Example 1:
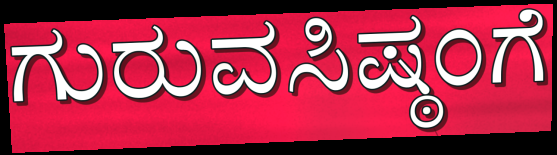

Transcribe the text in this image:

ಗುರುವಸಿಷ್ಠಂಗೆ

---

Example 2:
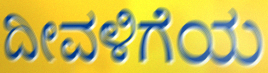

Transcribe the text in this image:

ದೀವಳಿಗೆಯ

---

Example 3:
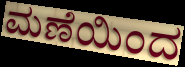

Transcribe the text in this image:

ಮಣೆಯಿಂದ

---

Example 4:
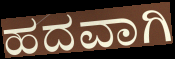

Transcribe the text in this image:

ಹದವಾಗಿ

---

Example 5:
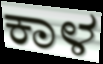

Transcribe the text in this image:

ಕಾಳ